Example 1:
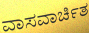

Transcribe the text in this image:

ವಾಸವಾರ್ಚಿತ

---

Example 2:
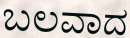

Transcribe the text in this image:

ಬಲವಾದ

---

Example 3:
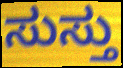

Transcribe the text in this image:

ಸುಸ್ತು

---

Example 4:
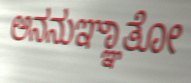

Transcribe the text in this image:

ಅನನುಞ್ಞಾತೋ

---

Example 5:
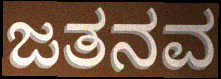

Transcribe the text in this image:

ಜತನವ